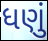
ધણું